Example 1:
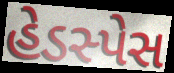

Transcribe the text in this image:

હેડસ્પેસ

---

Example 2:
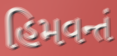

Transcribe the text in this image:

હિમવન્તં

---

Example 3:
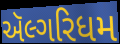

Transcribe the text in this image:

ઍલ્ગરિધમ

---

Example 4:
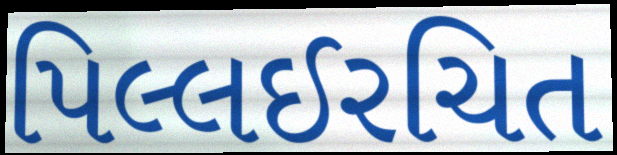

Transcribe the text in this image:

પિલ્લઈરચિત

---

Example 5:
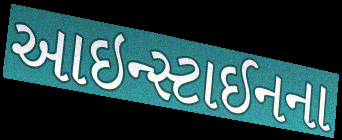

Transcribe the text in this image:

આઇન્સ્ટાઈનના